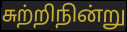
சுற்றிநின்று